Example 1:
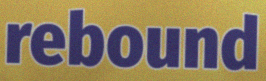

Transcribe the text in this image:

rebound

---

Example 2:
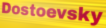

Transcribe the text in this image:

Dostoevsky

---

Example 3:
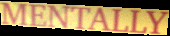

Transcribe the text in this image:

MENTALLY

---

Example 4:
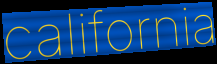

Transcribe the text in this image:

california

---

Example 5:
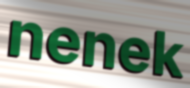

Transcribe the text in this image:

nenek